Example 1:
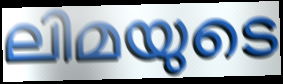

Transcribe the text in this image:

ലിമയുടെ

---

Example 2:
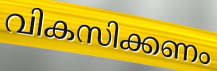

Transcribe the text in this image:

വികസിക്കണം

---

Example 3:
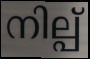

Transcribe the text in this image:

നില്പ്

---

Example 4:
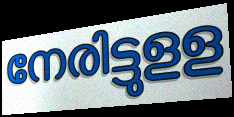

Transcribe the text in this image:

നേരിട്ടുളള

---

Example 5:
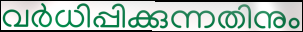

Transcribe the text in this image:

വർധിപ്പിക്കുന്നതിനും